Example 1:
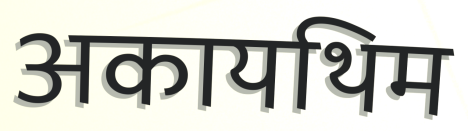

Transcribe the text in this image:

अकायथिम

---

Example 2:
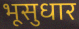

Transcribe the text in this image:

भूसुधार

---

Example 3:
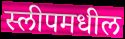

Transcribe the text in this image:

स्लीपमधील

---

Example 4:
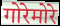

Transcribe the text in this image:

गोरेमोरे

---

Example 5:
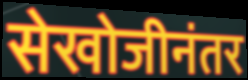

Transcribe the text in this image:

सेखोजीनंतर